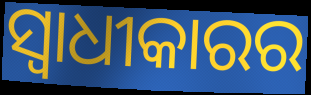
ସ୍ୱାଧୀକାରର